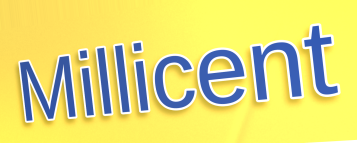
Millicent